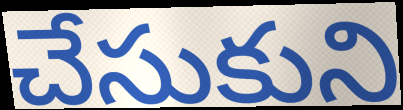
చేసుకుని